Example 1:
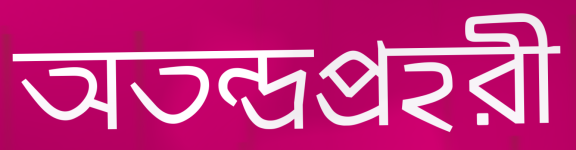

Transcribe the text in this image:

অতন্দ্রপ্রহরী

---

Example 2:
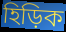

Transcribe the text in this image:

হিড়িক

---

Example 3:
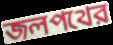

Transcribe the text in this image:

জলপথের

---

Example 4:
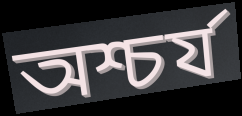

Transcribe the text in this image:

অশ্চর্য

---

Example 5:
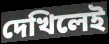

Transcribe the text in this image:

দেখিলেই